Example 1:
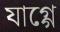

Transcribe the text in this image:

যাগ্গে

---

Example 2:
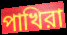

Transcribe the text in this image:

পাখিরা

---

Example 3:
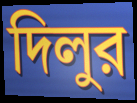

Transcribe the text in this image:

দিলুর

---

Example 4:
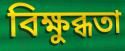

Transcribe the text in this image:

বিক্ষুব্ধতা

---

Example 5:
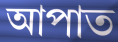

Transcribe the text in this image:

আপাত